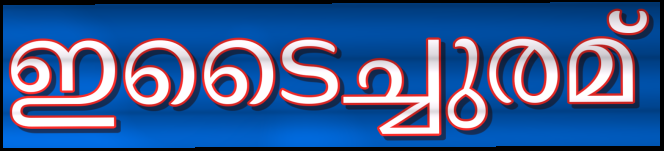
ഇടൈച്ചുരമ്